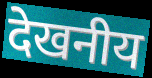
देखनीय